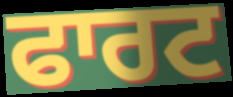
ਫਾਰਟ